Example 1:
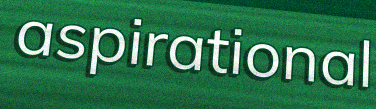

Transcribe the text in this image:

aspirational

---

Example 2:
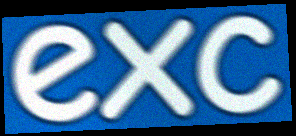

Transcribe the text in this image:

exc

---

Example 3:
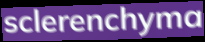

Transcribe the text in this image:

sclerenchyma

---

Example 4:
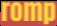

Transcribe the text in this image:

romp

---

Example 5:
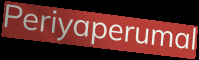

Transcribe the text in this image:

Periyaperumal